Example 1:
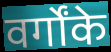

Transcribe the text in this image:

वर्गोंके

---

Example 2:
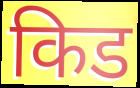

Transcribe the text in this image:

किड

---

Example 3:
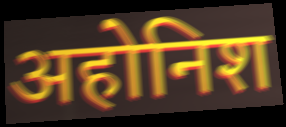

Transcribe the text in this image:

अहोनिश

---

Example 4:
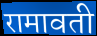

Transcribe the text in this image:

रामावती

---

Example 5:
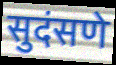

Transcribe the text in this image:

सुदंसणे